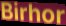
Birhor